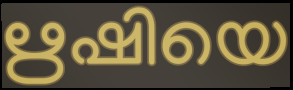
ഋഷിയെ